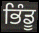
ਭਿੰਡੂ